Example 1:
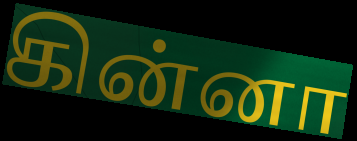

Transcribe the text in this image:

கின்னா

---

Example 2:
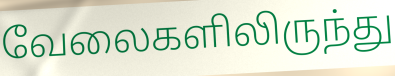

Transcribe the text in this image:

வேலைகளிலிருந்து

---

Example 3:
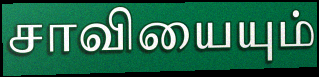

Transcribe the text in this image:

சாவியையும்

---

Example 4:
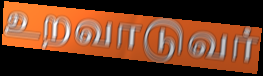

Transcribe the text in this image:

உறவாடுவர்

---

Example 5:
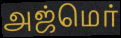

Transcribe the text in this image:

அஜ்மெர்